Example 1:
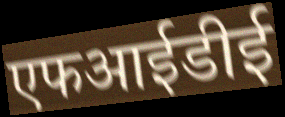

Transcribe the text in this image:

एफआईडीई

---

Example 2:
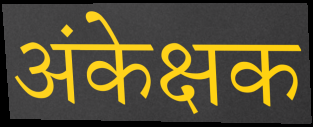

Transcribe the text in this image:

अंकेक्षक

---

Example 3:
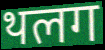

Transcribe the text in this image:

थलग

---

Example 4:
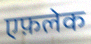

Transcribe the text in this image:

एफ़लेक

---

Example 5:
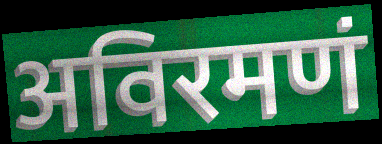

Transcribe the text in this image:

अविरमणं